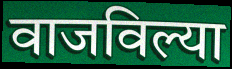
वाजविल्या